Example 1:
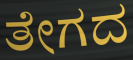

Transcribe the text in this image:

ತೇಗದ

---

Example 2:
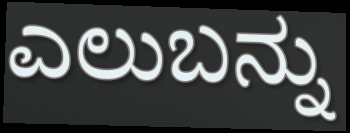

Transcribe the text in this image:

ಎಲುಬನ್ನು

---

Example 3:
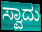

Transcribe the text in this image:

ಸ್ವಾದು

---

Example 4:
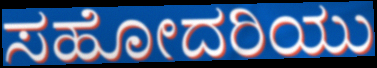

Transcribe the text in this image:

ಸಹೋದರಿಯು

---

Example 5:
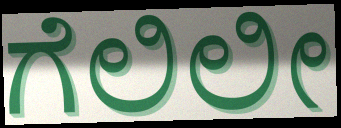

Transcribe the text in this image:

ಗೆಲಿಲೀ